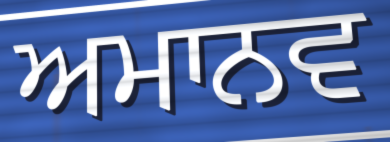
ਅਮਾਨਵ